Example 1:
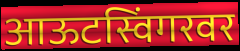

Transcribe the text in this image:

आऊटस्विंगरवर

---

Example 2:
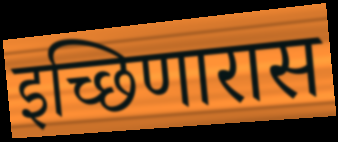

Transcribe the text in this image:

इच्छिणारास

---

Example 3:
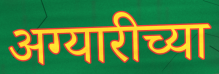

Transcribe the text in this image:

अग्यारीच्या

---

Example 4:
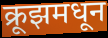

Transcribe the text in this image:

क्रूझमधून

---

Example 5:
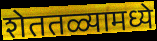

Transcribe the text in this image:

शेततळ्यामध्ये